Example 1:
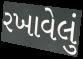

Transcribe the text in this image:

રખાવેલું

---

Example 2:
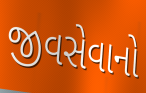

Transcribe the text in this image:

જીવસેવાનો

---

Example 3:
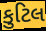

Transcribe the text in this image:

કુટિલ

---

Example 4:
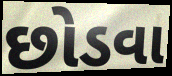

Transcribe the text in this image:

છોડવા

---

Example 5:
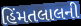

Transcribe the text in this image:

હિંમતલાલની